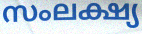
സംലക്ഷ്യ